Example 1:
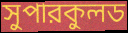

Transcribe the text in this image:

সুপারকুলড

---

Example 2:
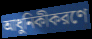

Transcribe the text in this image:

আধুনিকীকরণে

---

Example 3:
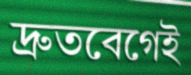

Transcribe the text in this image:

দ্রুতবেগেই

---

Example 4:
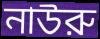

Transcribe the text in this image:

নাউরু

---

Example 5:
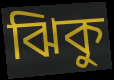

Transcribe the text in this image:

ঝিকু